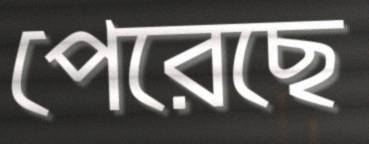
পেরেছে